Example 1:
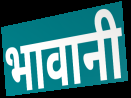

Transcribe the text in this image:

भावानी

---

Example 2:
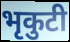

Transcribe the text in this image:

भृकुटी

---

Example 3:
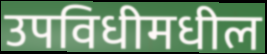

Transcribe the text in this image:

उपविधीमधील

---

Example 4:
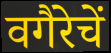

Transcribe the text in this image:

वगैरेचें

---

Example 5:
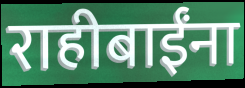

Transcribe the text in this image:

राहीबाईंना